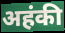
अहंकी